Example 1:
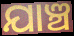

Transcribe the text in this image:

ଯାଞ୍ଚ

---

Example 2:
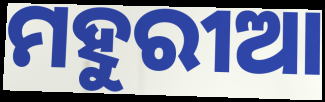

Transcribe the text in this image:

ମହୁରୀଆ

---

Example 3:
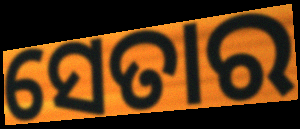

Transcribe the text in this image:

ସେତାର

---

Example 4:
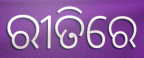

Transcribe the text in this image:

ରୀତିରେ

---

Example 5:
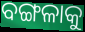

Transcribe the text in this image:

ବଙ୍ଗଳାକୁ